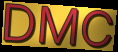
DMC